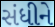
સંધીને